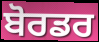
ਬੋਰਡਰ